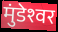
मुंडेश्वर